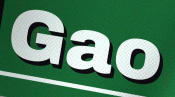
Gao